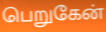
பெறுகேன்